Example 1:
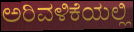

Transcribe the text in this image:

ಅರಿವಳಿಕೆಯಲ್ಲಿ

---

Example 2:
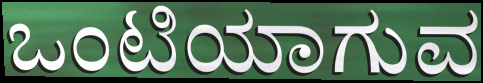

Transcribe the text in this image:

ಒಂಟಿಯಾಗುವ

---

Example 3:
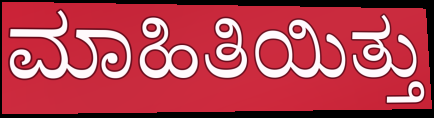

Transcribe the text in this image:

ಮಾಹಿತಿಯಿತ್ತು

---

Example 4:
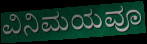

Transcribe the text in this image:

ವಿನಿಮಯವೂ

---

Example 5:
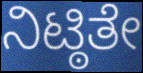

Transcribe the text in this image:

ನಿಟ್ಠಿತೇ